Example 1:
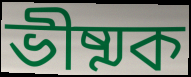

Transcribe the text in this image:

ভীষ্মক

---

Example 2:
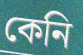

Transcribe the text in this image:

কেনি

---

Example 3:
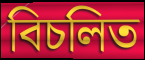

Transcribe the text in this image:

বিচলিত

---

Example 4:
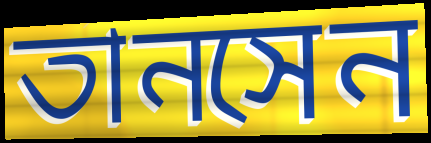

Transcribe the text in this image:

তানসেন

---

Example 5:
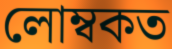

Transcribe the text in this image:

লোম্বকত